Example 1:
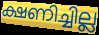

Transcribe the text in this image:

ക്ഷണിച്ചില്ല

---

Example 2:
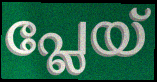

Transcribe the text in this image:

പ്ലേയ്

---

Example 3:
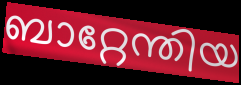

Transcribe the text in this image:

ബാറ്റേന്തിയ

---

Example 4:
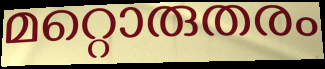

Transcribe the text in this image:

മറ്റൊരുതരം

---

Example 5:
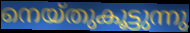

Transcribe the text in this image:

നെയ്തുകൂട്ടുന്നു